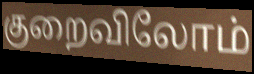
குறைவிலோம்